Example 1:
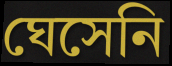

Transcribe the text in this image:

ঘেসেনি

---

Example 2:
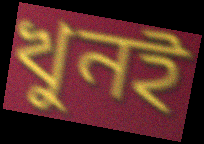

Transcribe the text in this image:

খুনই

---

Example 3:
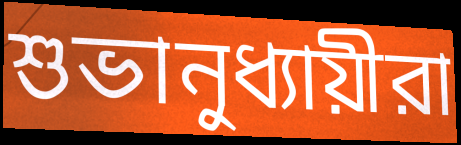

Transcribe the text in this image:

শুভানুধ্যায়ীরা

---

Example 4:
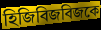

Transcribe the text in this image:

হিজিবিজবিজকে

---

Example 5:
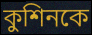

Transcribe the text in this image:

কুশিনকে